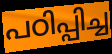
പഠിപ്പിച്ച